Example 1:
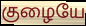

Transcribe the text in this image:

குழையே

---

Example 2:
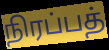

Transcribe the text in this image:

நிரப்பத்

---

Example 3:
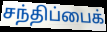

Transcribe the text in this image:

சந்திப்பைக்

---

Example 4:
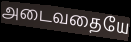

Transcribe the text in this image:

அடைவதையே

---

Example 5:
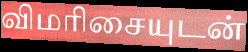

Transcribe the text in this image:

விமரிசையுடன்